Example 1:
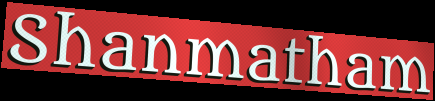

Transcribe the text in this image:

Shanmatham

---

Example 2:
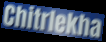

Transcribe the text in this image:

Chitrlekha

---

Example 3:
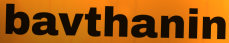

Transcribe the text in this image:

bavthanin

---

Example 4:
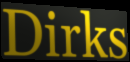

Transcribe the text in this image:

Dirks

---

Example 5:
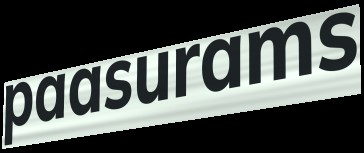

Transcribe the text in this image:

paasurams